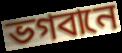
ভগবানে